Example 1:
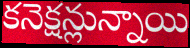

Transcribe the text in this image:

కనెక్షన్లున్నాయి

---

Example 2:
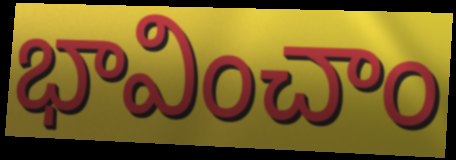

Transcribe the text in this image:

భావించాం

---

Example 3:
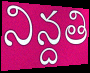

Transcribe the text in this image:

నిన్దతి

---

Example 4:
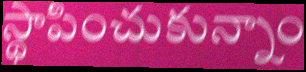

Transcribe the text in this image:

స్థాపించుకున్నాం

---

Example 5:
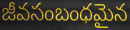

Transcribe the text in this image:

జీవసంబంధమైన